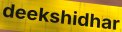
deekshidhar